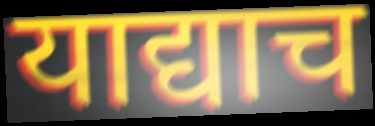
याद्याच